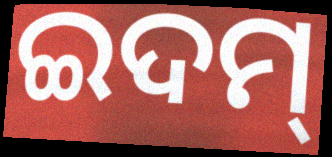
ଇଦମ୍